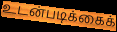
உடன்படிக்கைக்